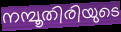
നമ്പൂതിരിയുടെ